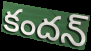
కందన్